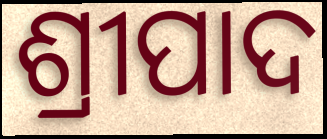
ଶ୍ରୀପାଦ